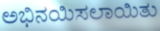
ಅಭಿನಯಿಸಲಾಯಿತು